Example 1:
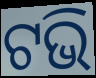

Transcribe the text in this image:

ଟଭି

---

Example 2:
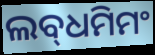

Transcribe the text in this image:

ଲବ୍‌ଧମିମଂ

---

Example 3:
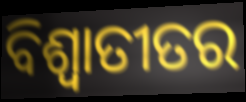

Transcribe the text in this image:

ବିଶ୍ଵାତୀତର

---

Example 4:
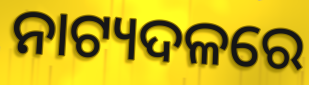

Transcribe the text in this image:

ନାଟ୍ୟଦଳରେ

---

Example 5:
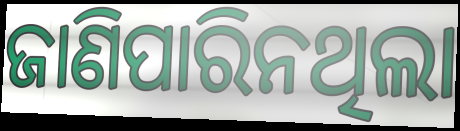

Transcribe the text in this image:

ଜାଣିପାରିନଥିଲା